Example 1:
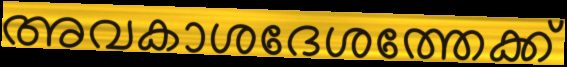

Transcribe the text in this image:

അവകാശദേശത്തേക്ക്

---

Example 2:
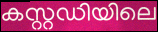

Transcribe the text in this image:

കസ്റ്റഡിയിലെ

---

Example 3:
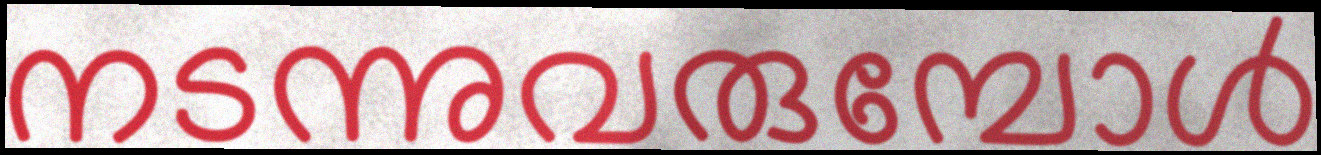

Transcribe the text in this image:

നടന്നുവരുമ്പോൾ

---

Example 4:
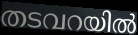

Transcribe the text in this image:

തടവറയിൽ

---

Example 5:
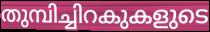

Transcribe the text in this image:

തുമ്പിച്ചിറകുകളുടെ